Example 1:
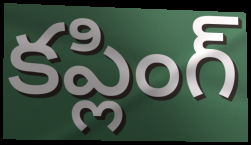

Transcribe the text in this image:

కప్లింగ్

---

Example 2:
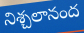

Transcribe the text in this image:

నిశ్చలానంద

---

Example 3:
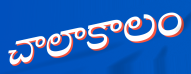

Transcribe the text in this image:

చాలాకాలం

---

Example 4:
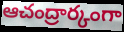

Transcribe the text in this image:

ఆచంద్రార్కంగా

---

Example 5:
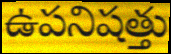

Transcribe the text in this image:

ఉపనిషత్తు